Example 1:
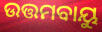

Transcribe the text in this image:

ଉତ୍ତମବାୟୁ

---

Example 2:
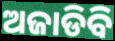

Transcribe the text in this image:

ଅଜାଡିବି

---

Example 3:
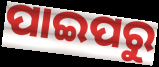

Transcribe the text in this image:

ପାଇପରୁ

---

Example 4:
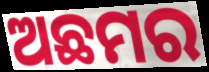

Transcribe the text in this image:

ଅଛମର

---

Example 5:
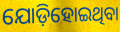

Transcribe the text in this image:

ଯୋଡ଼ିହୋଇଥିବା